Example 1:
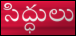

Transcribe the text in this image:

సిద్ధులు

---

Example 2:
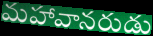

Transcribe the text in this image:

మహావానరుడు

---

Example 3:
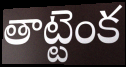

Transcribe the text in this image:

తాట్టెంక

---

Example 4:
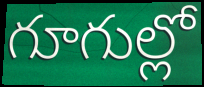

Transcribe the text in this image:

గూగుల్లో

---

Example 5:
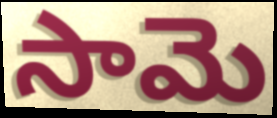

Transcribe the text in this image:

సామె